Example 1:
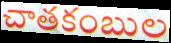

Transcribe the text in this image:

చాతకంబుల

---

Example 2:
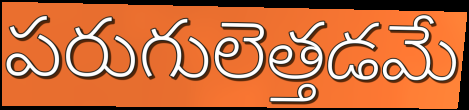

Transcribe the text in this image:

పరుగులెత్తడమే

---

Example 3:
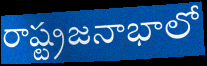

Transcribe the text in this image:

రాష్ట్రజనాభాలో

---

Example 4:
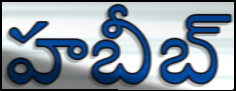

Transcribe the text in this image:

హబీబ్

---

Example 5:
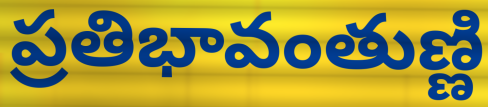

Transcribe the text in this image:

ప్రతిభావంతుణ్ణి